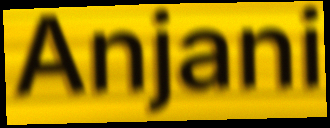
Anjani